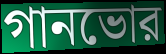
গানভোর